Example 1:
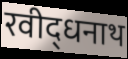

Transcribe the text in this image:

रवीद्धनाथ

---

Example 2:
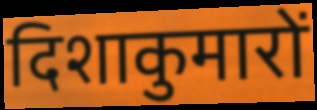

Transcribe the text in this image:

दिशाकुमारों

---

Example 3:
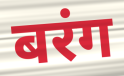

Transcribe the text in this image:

बरंग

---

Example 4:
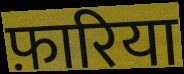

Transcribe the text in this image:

फ़ारिया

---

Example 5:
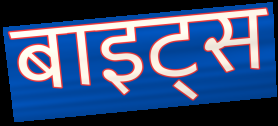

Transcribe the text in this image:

बाइट्स